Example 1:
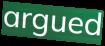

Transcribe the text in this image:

argued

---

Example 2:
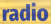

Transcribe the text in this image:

radio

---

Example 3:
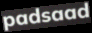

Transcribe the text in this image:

padsaad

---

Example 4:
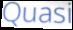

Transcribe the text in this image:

Quasi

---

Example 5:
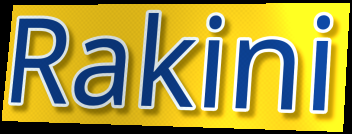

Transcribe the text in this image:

Rakini